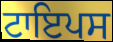
ਟਾਇਪਸ